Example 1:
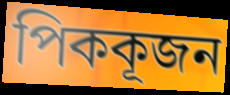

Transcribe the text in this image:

পিককূজন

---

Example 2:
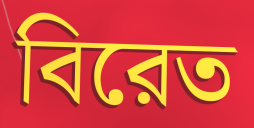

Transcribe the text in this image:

বিরেত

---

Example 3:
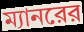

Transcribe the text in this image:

ম্যানরের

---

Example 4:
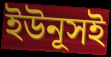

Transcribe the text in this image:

ইউনূসই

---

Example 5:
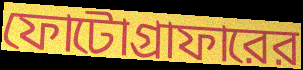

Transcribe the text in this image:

ফোটোগ্রাফারের